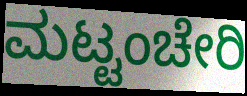
ಮಟ್ಟಂಚೇರಿ